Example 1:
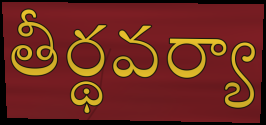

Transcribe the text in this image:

తీర్థవర్యా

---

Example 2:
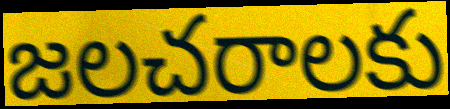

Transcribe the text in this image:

జలచరాలకు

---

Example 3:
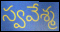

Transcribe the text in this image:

స్వవేశ్మ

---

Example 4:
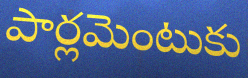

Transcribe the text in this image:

పార్లమెంటుకు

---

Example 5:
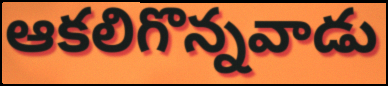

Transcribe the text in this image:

ఆకలిగొన్నవాడు